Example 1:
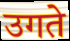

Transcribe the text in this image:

उगते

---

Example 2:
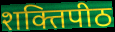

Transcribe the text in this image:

शक्तिपीठ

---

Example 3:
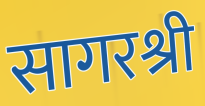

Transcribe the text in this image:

सागरश्री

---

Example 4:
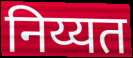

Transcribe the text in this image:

निय्यत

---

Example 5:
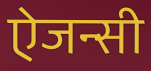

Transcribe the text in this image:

ऐजन्सी